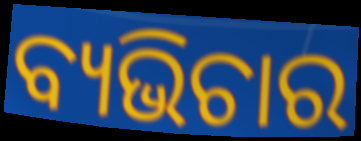
ବ୍ୟଭିଚାର